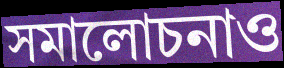
সমালোচনাও